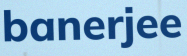
banerjee